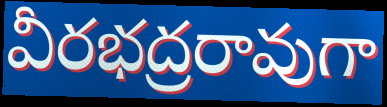
వీరభద్రరావుగా